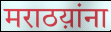
मराठय़ांना